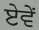
ਏਵੇਂ